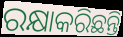
ରକ୍ଷାକରିଛନ୍ତି